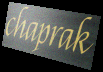
chaprak